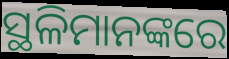
ସ୍ଥଳିମାନଙ୍କରେ